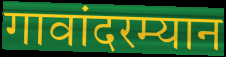
गावांदरम्यान